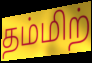
தம்மிற்